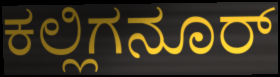
ಕಲ್ಲಿಗನೂರ್